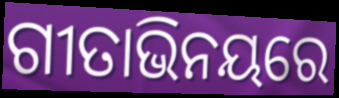
ଗୀତାଭିନୟରେ